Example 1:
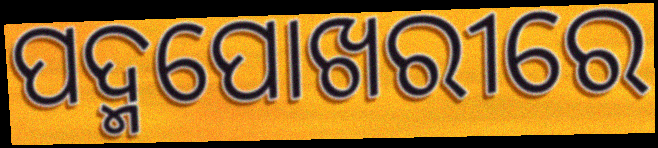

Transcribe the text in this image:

ପଦ୍ମପୋଖରୀରେ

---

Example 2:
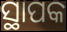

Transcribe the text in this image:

ସ୍ଥାପକ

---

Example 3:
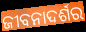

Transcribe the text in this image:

ଜୀବନାଦର୍ଶର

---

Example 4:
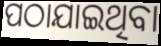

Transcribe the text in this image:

ପଠାଯାଇଥିବା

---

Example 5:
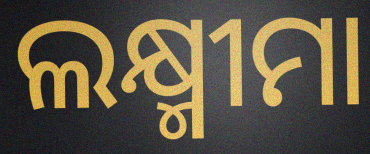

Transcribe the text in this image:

ଲକ୍ଷ୍ମୀମା